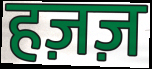
हज़ज़